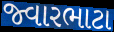
જ્વારભાટા